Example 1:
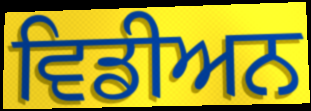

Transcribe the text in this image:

ਵਿਡੀਅਨ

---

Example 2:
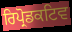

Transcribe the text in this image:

ਰਿਪ੍ਰੋਡਕਟਿਵ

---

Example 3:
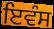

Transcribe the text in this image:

ਇਵੰਸ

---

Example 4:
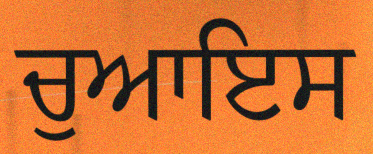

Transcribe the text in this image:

ਚੁਆਇਸ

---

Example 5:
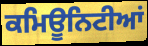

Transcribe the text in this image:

ਕਮਿਊਨਿਟੀਆਂ